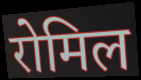
रोमिल